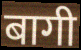
बागी